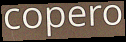
copero